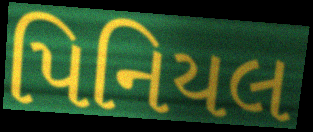
પિનિયલ